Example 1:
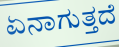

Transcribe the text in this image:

ಏನಾಗುತ್ತದೆ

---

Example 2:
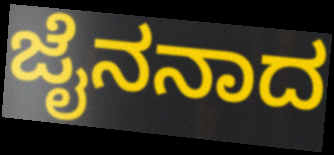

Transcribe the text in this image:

ಜೈನನಾದ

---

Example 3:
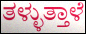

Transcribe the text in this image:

ತಳ್ಳುತ್ತಾಳೆ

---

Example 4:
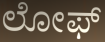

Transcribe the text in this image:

ಲೋಫ್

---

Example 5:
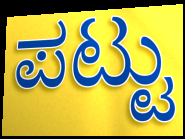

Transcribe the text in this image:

ಪಟ್ಟು